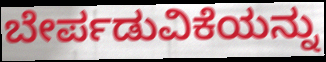
ಬೇರ್ಪಡುವಿಕೆಯನ್ನು